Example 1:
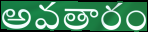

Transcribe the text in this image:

అవతారం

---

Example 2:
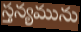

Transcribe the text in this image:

స్తన్యమును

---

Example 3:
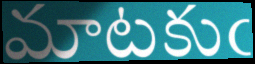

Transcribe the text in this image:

మాటకుఁ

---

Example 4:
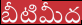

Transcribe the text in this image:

బీటిమీద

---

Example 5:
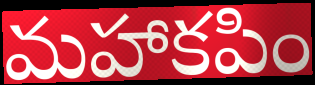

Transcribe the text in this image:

మహాకపిం